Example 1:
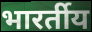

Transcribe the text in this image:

भारर्तीय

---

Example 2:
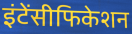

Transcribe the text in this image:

इंटेंसीफिकेशन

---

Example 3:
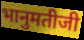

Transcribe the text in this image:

भानुमतीजी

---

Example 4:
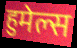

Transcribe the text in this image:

हुमेल्स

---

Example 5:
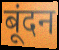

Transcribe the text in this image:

बूंदन